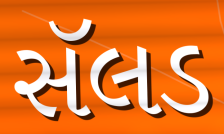
સૅલડ